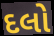
દલો